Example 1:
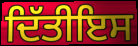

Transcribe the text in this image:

ਦਿੱਤੀਇਸ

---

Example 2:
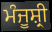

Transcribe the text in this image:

ਮੰਜੂਸ਼੍ਰੀ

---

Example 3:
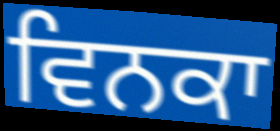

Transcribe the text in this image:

ਵਿਨਕਾ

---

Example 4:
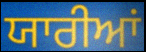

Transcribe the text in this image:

ਯਾਰੀਆਂ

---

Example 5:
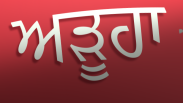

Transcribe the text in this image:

ਅੜੂਹਾ